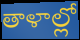
తాళాల్లో